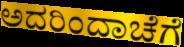
ಅದರಿಂದಾಚೆಗೆ